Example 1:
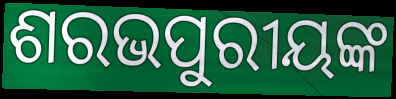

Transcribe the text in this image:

ଶରଭପୁରୀୟଙ୍କ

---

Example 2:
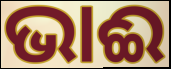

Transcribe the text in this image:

ଭାଈ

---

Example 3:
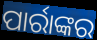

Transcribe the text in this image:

ପାର୍ରାଙ୍କର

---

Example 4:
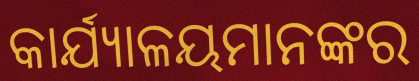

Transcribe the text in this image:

କାର୍ଯ୍ୟାଳୟମାନଙ୍କର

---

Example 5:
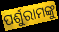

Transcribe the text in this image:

ପର୍ଶୁରାମଙ୍କୁ